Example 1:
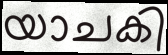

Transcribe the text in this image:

യാചകി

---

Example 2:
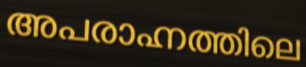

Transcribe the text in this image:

അപരാഹ്നത്തിലെ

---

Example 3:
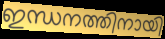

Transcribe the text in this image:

ഇന്ധനത്തിനായി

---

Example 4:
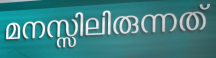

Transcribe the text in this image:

മനസ്സിലിരുന്നത്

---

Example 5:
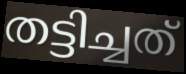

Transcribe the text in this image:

തട്ടിച്ചത്